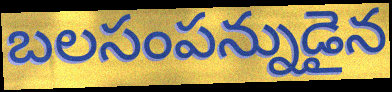
బలసంపన్నుడైన